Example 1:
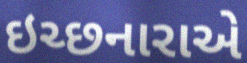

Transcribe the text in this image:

ઇચ્છનારાએ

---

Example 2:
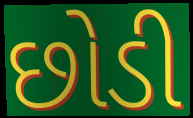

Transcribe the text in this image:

છોડી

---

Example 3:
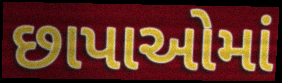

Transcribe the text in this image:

છાપાઓમાં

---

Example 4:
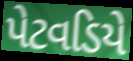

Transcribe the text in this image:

પેટવડિયે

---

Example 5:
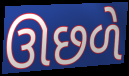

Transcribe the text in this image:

ઊછળે